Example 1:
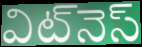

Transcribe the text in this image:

విట్‌నెస్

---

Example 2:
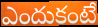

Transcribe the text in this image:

ఎందుకంటే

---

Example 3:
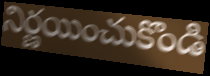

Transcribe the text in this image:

నిర్ణయించుకొండి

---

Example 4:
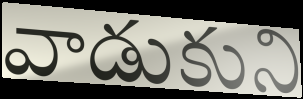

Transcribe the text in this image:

వాడుకుని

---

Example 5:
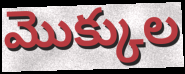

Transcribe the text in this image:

మొక్కుల